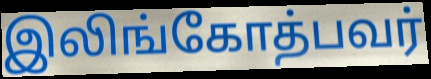
இலிங்கோத்பவர்